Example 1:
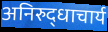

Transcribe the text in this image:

अनिरुद्धाचार्य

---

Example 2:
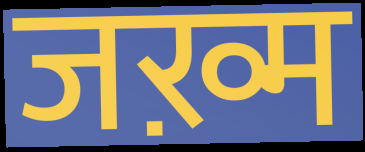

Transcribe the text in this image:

जख़्म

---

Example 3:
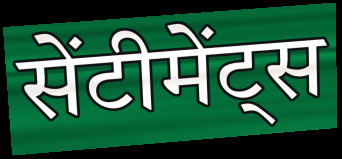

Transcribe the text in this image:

सेंटीमेंट्स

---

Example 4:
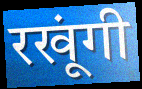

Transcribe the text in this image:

रखूंगी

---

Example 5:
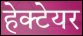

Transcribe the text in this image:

हेक्टेयर